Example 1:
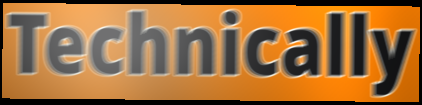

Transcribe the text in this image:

Technically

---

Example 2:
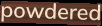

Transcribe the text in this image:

powdered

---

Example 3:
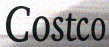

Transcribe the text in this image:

Costco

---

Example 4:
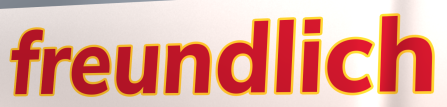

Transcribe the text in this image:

freundlich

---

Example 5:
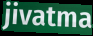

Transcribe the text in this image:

jivatma